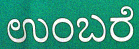
ಉಂಬರೆ